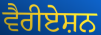
ਵੈਰੀਏਸ਼ਨ